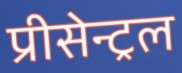
प्रीसेन्ट्रल